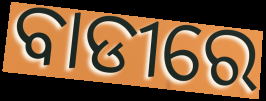
ବାଡୀରେ